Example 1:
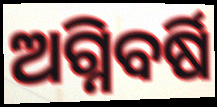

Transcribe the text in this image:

ଅଗ୍ନିବର୍ଷି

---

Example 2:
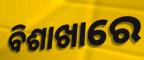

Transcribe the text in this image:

ବିଶାଖାରେ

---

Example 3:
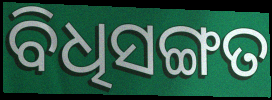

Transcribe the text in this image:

ବିଧିସଙ୍ଗତ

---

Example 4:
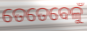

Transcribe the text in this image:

ତେତେବେଳୁଁ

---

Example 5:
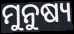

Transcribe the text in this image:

ମୁନୁଷ୍ୟ